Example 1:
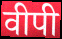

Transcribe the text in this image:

वीपी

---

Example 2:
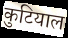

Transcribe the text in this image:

कुटियाल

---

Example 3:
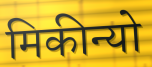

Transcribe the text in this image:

मिकीन्यो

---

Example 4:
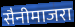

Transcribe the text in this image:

सैनीमाजरा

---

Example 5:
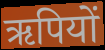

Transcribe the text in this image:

ऋपियों